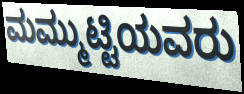
ಮಮ್ಮುಟ್ಟಿಯವರು